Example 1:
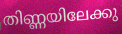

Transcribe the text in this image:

തിണ്ണയിലേക്കു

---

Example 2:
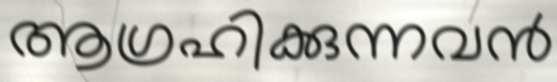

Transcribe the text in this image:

ആഗ്രഹിക്കുന്നവൻ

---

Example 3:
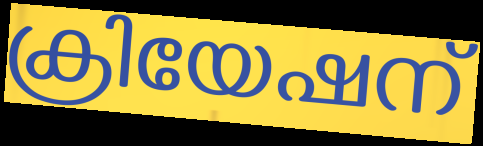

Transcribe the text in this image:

ക്രിയേഷന്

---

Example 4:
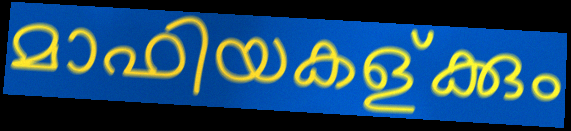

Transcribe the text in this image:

മാഫിയകള്ക്കും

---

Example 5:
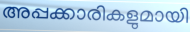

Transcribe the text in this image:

അപ്പക്കാരികളുമായി